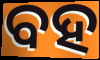
ବହ